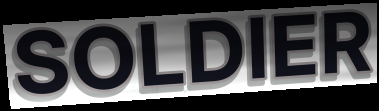
SOLDIER